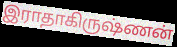
இராதாகிருஷ்ணன்